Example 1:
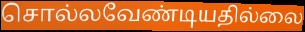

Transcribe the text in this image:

சொல்லவேண்டியதில்லை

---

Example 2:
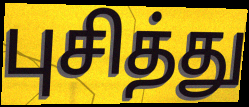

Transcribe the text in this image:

புசித்து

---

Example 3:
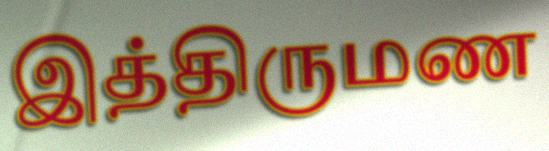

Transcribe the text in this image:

இத்திருமண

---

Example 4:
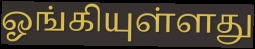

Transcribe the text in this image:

ஓங்கியுள்ளது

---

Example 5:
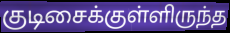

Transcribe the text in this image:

குடிசைக்குள்ளிருந்த